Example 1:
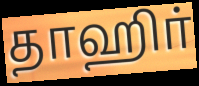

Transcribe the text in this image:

தாஹிர்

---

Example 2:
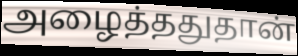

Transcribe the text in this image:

அழைத்ததுதான்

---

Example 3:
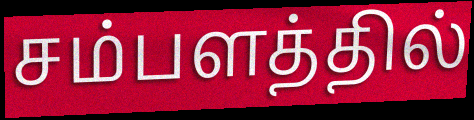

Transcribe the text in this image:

சம்பளத்தில்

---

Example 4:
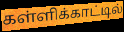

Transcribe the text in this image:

கள்ளிக்காட்டில்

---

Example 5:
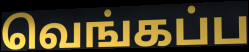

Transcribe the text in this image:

வெங்கப்ப